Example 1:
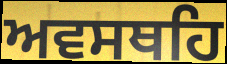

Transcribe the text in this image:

ਅਵਸਥਹਿ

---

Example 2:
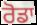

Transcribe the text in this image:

ਰੋਡਾ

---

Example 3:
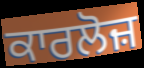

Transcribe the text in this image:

ਕਾਰਲੋਜ਼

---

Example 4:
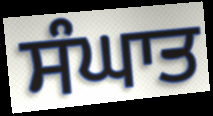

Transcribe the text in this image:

ਸੰਘਾਤ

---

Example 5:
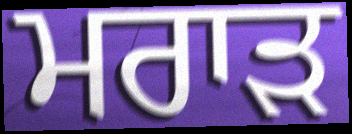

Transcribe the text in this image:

ਮਰਾੜ